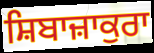
ਸ਼ਿਬਾਜ਼ਾਕੁਰਾ